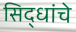
सिद्धांचे